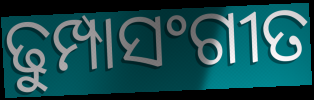
ଢୁମ୍ପାସଂଗୀତ